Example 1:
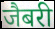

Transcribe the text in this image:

जैबरी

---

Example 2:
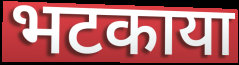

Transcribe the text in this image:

भटकाया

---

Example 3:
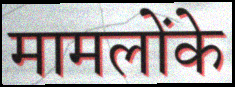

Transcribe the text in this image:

मामलोंके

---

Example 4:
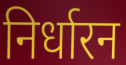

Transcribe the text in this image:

निर्धारन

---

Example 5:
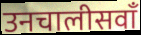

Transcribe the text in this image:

उनचालीसवाँ